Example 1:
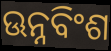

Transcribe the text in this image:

ଊନ୍ନବିଂଶ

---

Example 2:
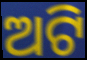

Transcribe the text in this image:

ଅଟି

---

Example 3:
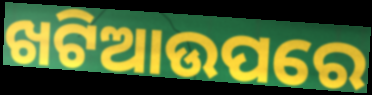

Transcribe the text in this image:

ଖଟିଆଉପରେ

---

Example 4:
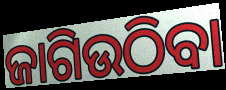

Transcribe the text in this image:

ଜାଗିଉଠିବା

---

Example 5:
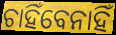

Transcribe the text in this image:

ଚାହିଁବେନାହିଁ